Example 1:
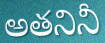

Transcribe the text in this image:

అతనినీ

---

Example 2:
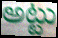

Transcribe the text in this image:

అట్టు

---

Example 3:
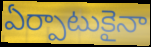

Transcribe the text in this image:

ఏర్పాటుకైనా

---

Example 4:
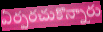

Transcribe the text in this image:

ఏర్పరచుకొన్నారు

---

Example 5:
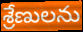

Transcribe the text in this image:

శ్రేణులను